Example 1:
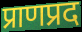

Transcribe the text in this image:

प्राणप्रद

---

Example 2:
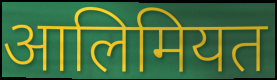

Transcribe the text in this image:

आलिमियत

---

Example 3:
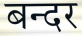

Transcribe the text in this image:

बन्दर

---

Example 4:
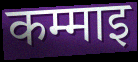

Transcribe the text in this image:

कम्माइ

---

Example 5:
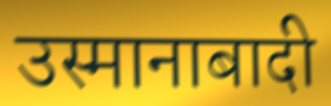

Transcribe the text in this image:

उस्मानाबादी